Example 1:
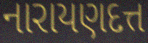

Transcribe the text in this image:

નારાયણદત્ત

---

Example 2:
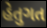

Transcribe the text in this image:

હેતુગત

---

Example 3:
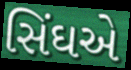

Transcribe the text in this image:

સિંઘએ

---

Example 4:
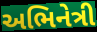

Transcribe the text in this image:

અભિનેત્રી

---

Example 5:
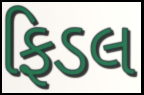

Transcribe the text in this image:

ફિડલ